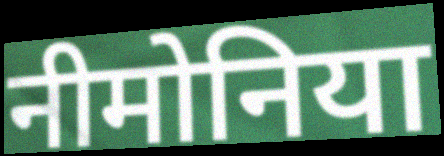
नीमोनिया